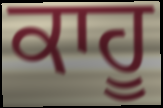
ਕਾਹੂ